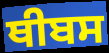
ਥੀਬਸ